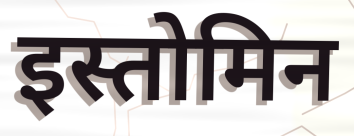
इस्तोमिन